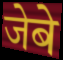
जेबे